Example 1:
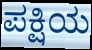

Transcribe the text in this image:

ಪಕ್ಷಿಯ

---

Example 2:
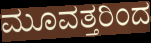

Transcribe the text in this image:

ಮೂವತ್ತರಿಂದ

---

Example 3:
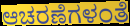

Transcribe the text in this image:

ಆಚರಣೆಗಳಂತೆ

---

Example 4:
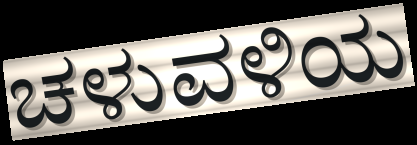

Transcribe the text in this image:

ಚಳುವಳಿಯ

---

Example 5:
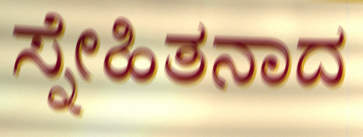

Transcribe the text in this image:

ಸ್ನೇಹಿತನಾದ